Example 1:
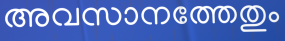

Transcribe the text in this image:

അവസാനത്തേതും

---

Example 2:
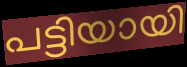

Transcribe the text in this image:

പട്ടിയായി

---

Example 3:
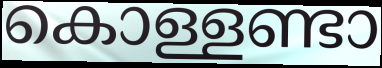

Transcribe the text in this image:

കൊള്ളണ്ടാ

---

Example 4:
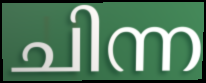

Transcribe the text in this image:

ചിന്ന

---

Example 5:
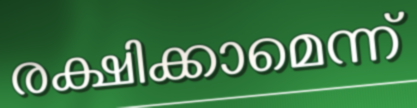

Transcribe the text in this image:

രക്ഷിക്കാമെന്ന്